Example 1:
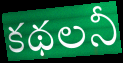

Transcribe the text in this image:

కథలనీ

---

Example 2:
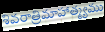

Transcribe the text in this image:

శివరాత్రిమాహాత్మ్యము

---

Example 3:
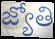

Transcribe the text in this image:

జ్యోతి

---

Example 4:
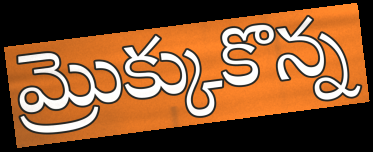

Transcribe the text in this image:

మ్రొక్కుకొన్న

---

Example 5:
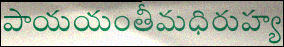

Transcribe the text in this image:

పాయయంతీమధిరుహ్య